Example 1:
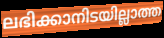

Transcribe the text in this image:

ലഭിക്കാനിടയില്ലാത്ത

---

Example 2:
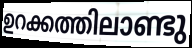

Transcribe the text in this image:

ഉറക്കത്തിലാണ്ടു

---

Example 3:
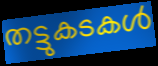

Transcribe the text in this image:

തട്ടുകടകൾ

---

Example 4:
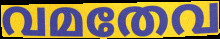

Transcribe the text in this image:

വമതേവ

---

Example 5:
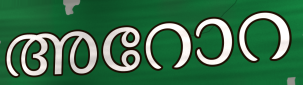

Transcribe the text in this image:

അറോറ